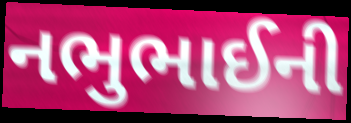
નભુભાઈની